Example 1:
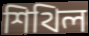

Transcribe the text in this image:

শিথিল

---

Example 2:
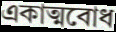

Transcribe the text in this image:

একাত্মবোধ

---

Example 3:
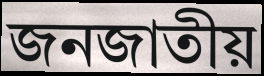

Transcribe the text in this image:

জনজাতীয়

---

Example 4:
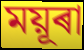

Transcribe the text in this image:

ময়ূৰা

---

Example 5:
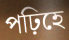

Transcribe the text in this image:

পঢ়িহে